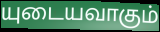
யுடையவாகும்